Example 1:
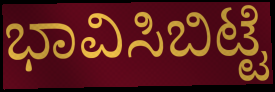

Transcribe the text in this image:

ಭಾವಿಸಿಬಿಟ್ಟೆ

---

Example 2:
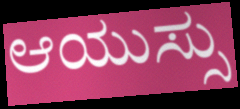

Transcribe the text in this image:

ಆಯುಸ್ಸು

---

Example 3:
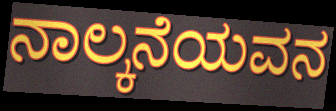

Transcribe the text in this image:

ನಾಲ್ಕನೆಯವನ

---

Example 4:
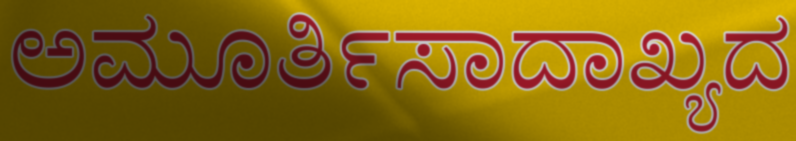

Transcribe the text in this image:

ಅಮೂರ್ತಿಸಾದಾಖ್ಯದ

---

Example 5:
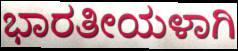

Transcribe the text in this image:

ಭಾರತೀಯಳಾಗಿ